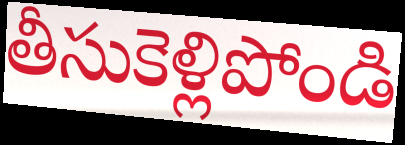
తీసుకెళ్లిపోండి